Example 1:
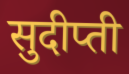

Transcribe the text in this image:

सुदीप्ती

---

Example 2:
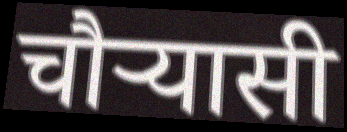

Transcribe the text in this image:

चौर्‍यासी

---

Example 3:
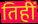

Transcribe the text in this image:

तिहीं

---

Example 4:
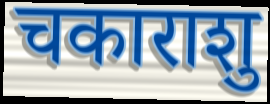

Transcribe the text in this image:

चकाराशु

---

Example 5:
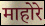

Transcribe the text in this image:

माहोरे